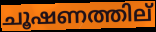
ചൂഷണത്തില്